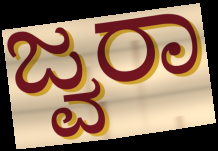
ಜ್ವರಾ